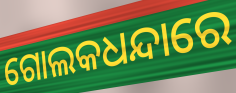
ଗୋଲକଧନ୍ଦାରେ